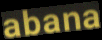
abana